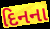
દિનના